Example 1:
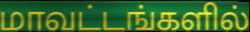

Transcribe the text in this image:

மாவட்டங்களில்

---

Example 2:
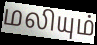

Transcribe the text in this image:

மலியும்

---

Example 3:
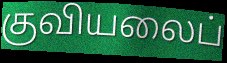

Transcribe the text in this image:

குவியலைப்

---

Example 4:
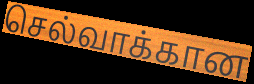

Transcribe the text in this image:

செல்வாக்கான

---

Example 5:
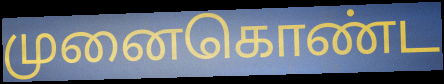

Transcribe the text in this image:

முனைகொண்ட